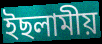
ইছলামীয়